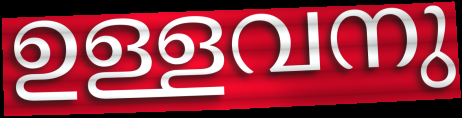
ഉള്ളവനു